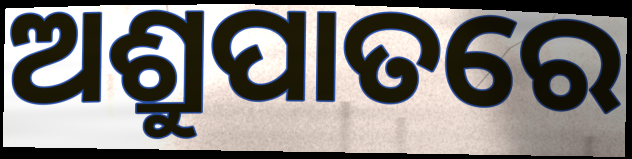
ଅଶ୍ରୁପାତରେ